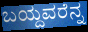
ಬಯ್ದವರೆನ್ನ